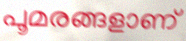
പൂമരങ്ങളാണ്